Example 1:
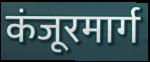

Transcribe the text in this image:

कंजूरमार्ग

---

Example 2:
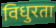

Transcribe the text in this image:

विधुरता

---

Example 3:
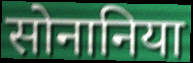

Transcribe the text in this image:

सोनानिया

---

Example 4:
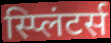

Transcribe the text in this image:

स्प्लिंटर्स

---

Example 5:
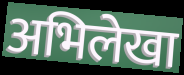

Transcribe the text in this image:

अभिलेखा